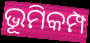
ଭୂମିକମ୍ପ